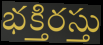
భక్తిరస్తు